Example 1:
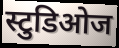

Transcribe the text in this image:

स्टुडिओज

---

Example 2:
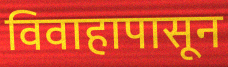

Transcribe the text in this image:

विवाहापासून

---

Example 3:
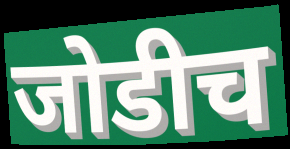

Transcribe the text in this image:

जोडीच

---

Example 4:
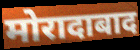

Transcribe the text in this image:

मोरादाबाद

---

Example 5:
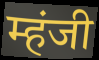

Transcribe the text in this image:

म्हंजी